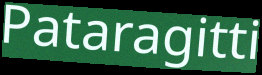
Pataragitti